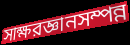
সাক্ষরজ্ঞানসম্পন্ন